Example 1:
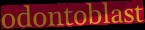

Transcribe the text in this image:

odontoblast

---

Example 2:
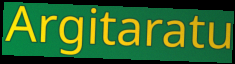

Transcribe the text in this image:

Argitaratu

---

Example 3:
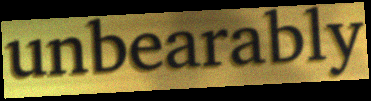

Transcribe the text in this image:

unbearably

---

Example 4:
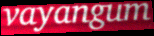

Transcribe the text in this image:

vayangum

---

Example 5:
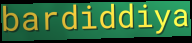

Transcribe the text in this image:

bardiddiya